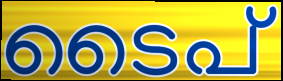
ടൈപ്